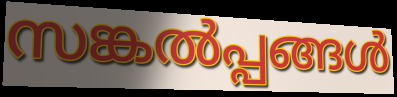
സങ്കൽപ്പങ്ങൾ